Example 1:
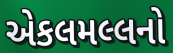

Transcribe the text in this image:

એકલમલ્લનો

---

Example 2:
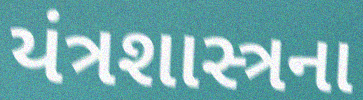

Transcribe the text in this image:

યંત્રશાસ્ત્રના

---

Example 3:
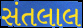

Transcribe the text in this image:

સંતલાલ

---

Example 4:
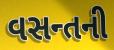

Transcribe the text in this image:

વસન્તની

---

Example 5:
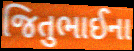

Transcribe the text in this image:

જિતુભાઈના